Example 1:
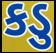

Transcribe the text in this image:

કડુ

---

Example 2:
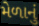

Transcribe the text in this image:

મેળાનું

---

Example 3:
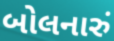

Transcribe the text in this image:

બોલનારું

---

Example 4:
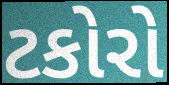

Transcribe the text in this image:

ટકોરો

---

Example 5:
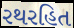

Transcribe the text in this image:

રથરહિત